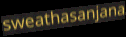
sweathasanjana